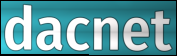
dacnet